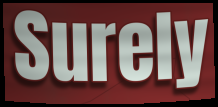
Surely